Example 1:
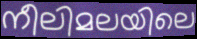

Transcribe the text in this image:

നീലിമലയിലെ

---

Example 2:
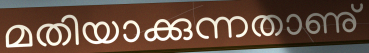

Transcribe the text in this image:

മതിയാക്കുന്നതാണു്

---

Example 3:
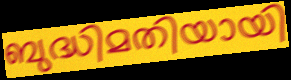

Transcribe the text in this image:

ബുദ്ധിമതിയായി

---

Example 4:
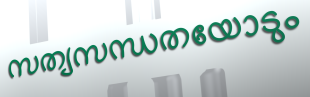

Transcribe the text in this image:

സത്യസന്ധതയോടും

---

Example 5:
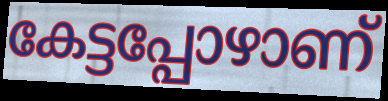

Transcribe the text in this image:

കേട്ടപ്പോഴാണ്